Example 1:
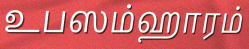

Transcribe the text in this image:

உபஸம்ஹாரம்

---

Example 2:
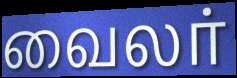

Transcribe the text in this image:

வைலர்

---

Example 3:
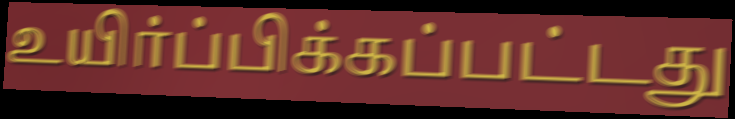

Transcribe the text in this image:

உயிர்ப்பிக்கப்பட்டது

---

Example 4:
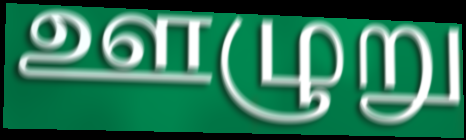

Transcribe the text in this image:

ஊழுறு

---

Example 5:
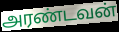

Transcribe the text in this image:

அரண்டவன்